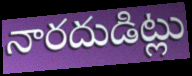
నారదుడిట్లు